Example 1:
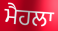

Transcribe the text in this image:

ਮੈਹਲਾ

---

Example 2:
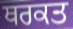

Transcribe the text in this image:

ਥਰਕਤ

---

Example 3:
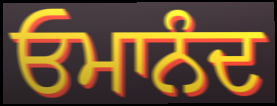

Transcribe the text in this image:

ਓਮਾਨੰਦ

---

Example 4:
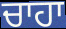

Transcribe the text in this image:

ਚਾਹਾ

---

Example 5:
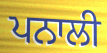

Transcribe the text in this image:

ਪਨਾਲੀ